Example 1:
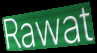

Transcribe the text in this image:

Rawat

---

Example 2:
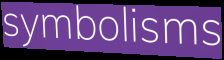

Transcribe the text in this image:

symbolisms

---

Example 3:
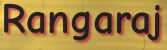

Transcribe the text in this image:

Rangaraj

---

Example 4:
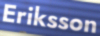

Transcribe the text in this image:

Eriksson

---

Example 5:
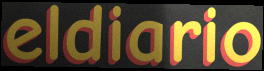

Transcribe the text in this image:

eldiario